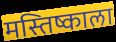
मस्तिष्काला